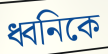
ধ্বনিকে